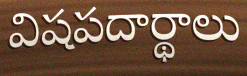
విషపదార్థాలు